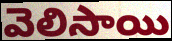
వెలిసాయి